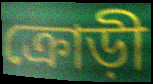
ক্রোড়ী